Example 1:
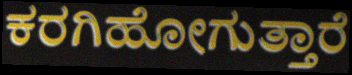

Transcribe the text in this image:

ಕರಗಿಹೋಗುತ್ತಾರೆ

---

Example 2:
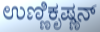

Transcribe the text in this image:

ಉಣ್ಣಿಕೃಷ್ಣನ್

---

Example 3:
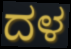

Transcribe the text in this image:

ದಳ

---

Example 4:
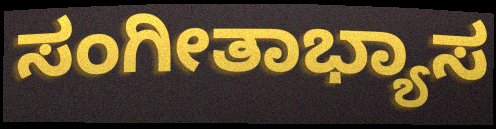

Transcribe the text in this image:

ಸಂಗೀತಾಭ್ಯಾಸ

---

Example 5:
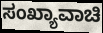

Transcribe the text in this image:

ಸಂಖ್ಯಾವಾಚಿ